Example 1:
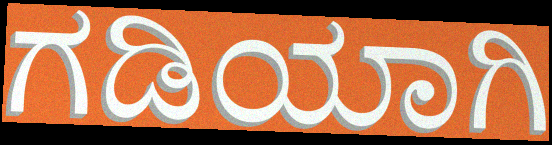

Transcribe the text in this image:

ಗಡಿಯಾಗಿ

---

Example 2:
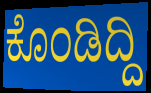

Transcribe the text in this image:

ಕೊಂಡಿದ್ದಿ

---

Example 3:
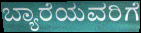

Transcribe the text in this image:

ಬ್ಯಾರೆಯವರಿಗೆ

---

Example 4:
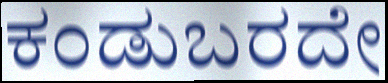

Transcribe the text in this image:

ಕಂಡುಬರದೇ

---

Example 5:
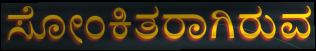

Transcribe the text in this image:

ಸೋಂಕಿತರಾಗಿರುವ